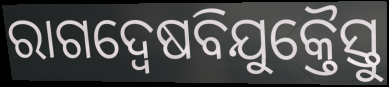
ରାଗଦ୍ୱେଷବିଯୁକ୍ତୈସ୍ତୁ